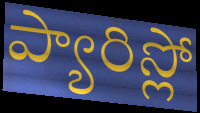
ప్యారిస్లో